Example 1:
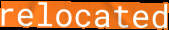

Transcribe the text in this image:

relocated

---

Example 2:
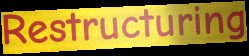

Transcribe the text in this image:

Restructuring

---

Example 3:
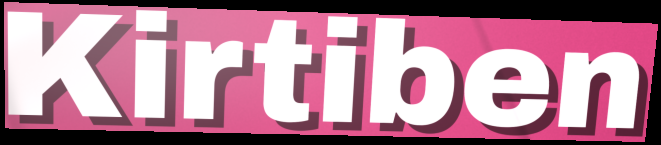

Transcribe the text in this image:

Kirtiben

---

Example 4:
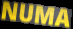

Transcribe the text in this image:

NUMA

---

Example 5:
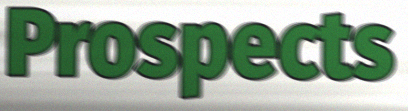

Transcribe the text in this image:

Prospects